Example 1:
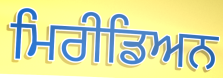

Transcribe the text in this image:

ਮਿਰੀਡਿਅਨ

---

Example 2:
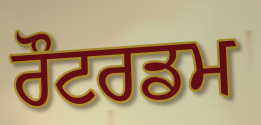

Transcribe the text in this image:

ਰੌਟਰਡਮ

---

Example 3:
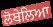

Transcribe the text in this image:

ਲੋਬੇਲਿਆ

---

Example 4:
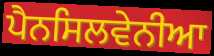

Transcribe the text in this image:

ਪੈਨਸਿਲਵੇਨੀਆ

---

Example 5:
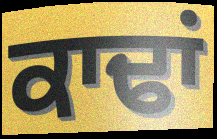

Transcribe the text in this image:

ਕਾਢਾਂ